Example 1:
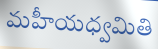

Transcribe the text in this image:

మహీయధ్వమితి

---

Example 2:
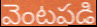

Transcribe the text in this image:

వెంటపడి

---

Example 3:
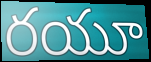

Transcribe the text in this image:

రయూ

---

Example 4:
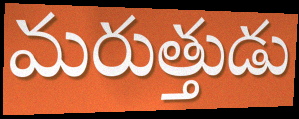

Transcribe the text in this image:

మరుత్తుడు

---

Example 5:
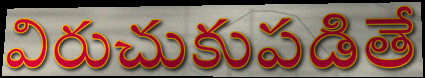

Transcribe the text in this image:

విరుచుకుపడితే